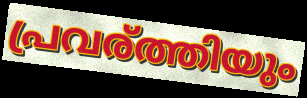
പ്രവര്ത്തിയും